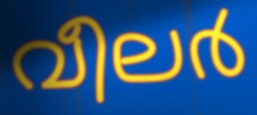
വീലർ